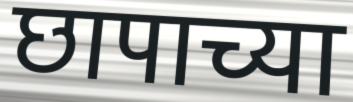
छापाच्या